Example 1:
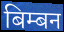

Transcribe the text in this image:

बिम्बन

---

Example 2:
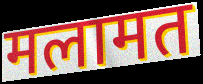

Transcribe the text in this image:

मलामत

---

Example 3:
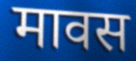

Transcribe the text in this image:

मावस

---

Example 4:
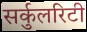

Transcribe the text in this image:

सर्कुलरिटी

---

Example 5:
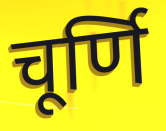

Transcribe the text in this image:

चूर्णि